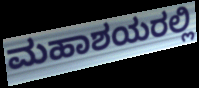
ಮಹಾಶಯರಲ್ಲಿ